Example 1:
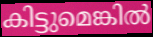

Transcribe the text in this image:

കിട്ടുമെങ്കിൽ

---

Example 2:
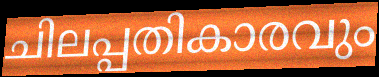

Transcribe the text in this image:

ചിലപ്പതികാരവും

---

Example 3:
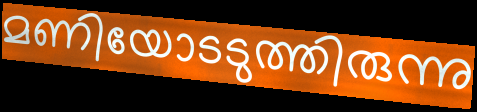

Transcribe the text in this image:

മണിയോടടുത്തിരുന്നു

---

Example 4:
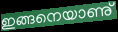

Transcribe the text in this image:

ഇങ്ങനെയാണു്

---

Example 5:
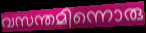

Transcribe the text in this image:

വസന്തമിന്നൊരു